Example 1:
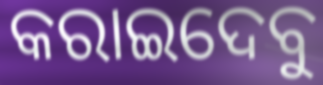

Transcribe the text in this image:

କରାଇଦେବୁ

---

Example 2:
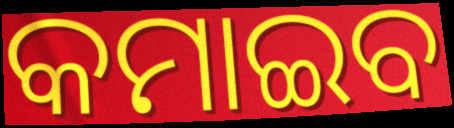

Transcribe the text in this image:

କମାଇବ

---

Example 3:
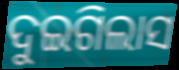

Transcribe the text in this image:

ଦୁଇଗିଲାସ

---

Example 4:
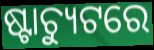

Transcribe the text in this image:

ଷ୍ଟାଚ୍ୟୁଟରେ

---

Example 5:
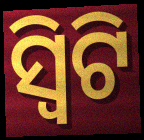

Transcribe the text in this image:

ସ୍ୱିଟି